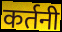
कर्तनी